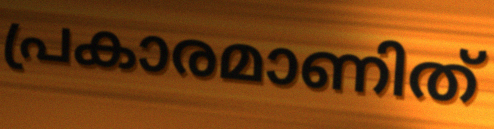
പ്രകാരമാണിത്